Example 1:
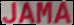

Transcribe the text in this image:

JAMA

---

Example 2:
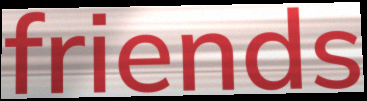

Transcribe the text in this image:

friends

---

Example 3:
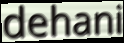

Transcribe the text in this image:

dehani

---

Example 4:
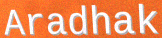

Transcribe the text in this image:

Aradhak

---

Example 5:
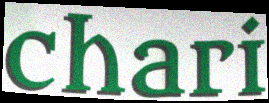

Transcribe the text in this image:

chari